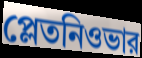
প্লেতনিওভার